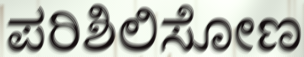
ಪರಿಶಿಲಿಸೋಣ